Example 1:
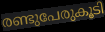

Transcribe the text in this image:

രണ്ടുപേരുകൂടി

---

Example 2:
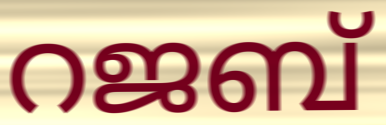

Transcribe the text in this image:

റജബ്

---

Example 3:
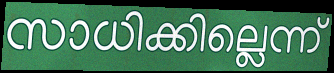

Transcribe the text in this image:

സാധിക്കില്ലെന്ന്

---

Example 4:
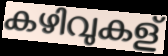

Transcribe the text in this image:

കഴിവുകള്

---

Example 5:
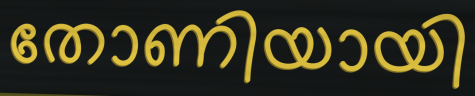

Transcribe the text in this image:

തോണിയായി